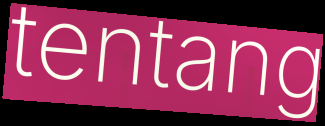
tentang